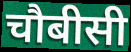
चौबीसी